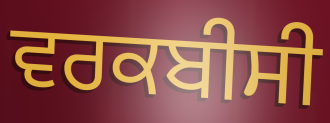
ਵਰਕਬੀਸੀ